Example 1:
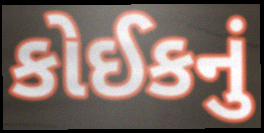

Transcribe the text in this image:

કોઈકનું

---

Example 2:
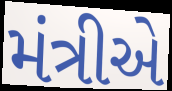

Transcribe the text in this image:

મંત્રીએ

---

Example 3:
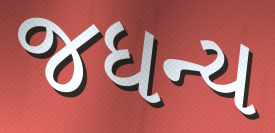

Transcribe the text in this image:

જધન્ય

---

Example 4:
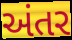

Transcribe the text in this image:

અંતર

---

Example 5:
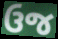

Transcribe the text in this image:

ઉજ